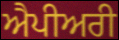
ਐਪੀਅਰੀ